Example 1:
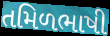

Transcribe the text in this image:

તમિળભાષી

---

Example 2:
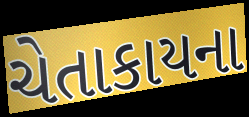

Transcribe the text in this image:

ચેતાકાયના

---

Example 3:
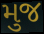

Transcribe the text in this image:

મુજ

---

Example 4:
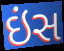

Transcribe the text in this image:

ઇંસ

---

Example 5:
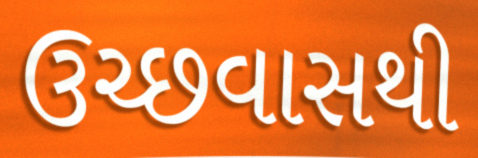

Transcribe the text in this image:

ઉચ્છવાસથી